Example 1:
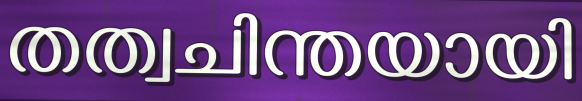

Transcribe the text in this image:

തത്വചിന്തയായി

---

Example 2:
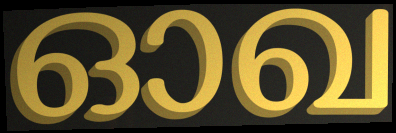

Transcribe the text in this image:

ഓഖ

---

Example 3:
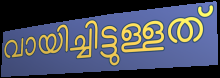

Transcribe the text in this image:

വായിച്ചിട്ടുള്ളത്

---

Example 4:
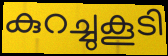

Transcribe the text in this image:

കുറച്ചുകൂടി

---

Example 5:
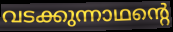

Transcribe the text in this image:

വടക്കുന്നാഥന്റെ